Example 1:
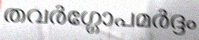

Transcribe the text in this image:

തവർഗ്ഗോപമർദ്ദം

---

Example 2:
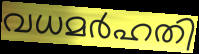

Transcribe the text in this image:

വധമർഹതി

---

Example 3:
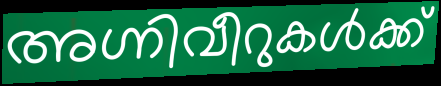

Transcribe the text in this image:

അഗ്നിവീറുകൾക്ക്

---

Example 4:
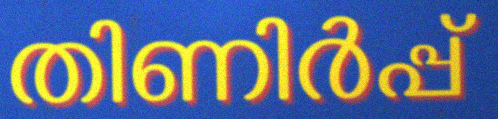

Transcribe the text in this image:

തിണിർപ്പ്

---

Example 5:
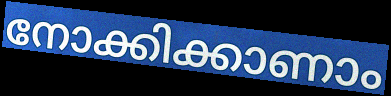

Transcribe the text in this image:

നോക്കിക്കാണാം